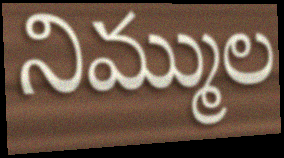
నిమ్ముల